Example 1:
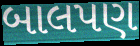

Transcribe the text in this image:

બાલપણ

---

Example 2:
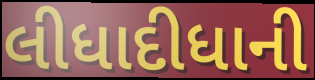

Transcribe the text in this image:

લીધાદીધાની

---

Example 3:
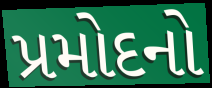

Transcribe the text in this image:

પ્રમોદનો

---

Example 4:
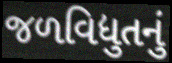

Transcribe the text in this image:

જળવિદ્યુતનું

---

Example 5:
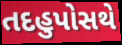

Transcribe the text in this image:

તદહુપોસથે